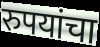
रुपयांचा